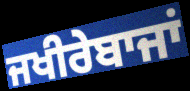
ਜਖੀਰੇਬਾਜਾਂ